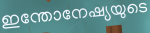
ഇന്തോനേഷ്യയുടെ